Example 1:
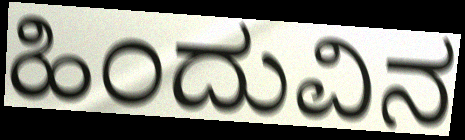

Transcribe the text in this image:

ಹಿಂದುವಿನ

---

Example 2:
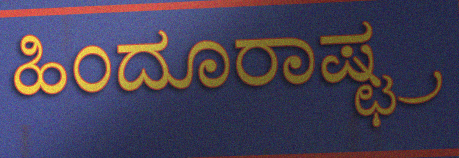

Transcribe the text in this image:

ಹಿಂದೂರಾಷ್ಟ್ರ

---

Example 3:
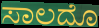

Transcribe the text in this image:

ಸಾಲದೊ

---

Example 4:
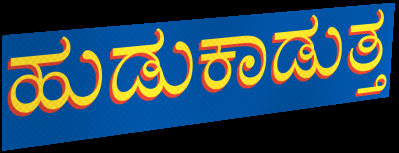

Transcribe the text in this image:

ಹುಡುಕಾಡುತ್ತ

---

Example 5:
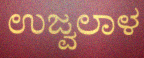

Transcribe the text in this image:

ಉಜ್ವಲಾಳ